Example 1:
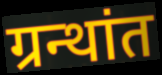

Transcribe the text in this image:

ग्रन्थांत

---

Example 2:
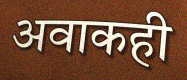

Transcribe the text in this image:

अवाकही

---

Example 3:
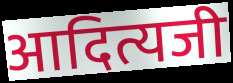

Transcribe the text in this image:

आदित्यजी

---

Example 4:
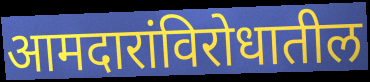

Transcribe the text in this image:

आमदारांविरोधातील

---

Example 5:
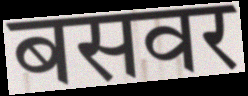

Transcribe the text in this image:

बसवर